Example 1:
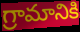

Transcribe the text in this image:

గ్రామానికి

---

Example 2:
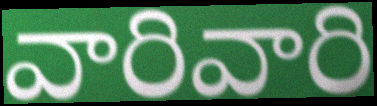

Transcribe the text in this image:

వారివారి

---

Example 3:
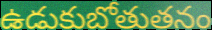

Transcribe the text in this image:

ఉడుకుబోతుతనం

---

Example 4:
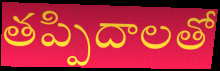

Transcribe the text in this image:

తప్పిదాలతో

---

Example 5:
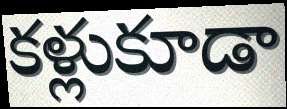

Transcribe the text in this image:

కళ్లుకూడా